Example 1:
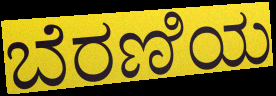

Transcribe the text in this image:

ಬೆರಣಿಯ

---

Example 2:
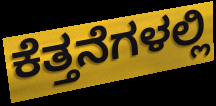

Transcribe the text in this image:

ಕೆತ್ತನೆಗಳಲ್ಲಿ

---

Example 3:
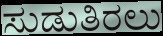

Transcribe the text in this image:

ಸುಡುತಿರಲು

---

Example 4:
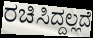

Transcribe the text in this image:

ರಚಿಸಿದ್ದಲ್ಲದೆ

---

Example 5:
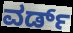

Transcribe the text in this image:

ವರ್ಡ್